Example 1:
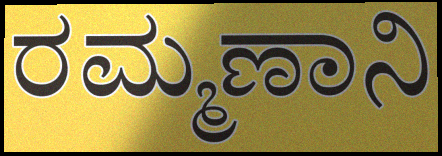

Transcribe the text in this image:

ರಮ್ಮಣಾನಿ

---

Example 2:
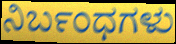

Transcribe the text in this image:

ನಿರ್ಬಂಧಗಳು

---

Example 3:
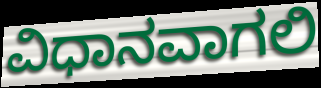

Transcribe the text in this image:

ವಿಧಾನವಾಗಲಿ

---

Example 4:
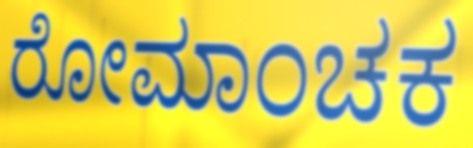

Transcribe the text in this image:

ರೋಮಾಂಚಕ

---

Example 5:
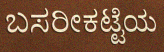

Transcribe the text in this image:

ಬಸರೀಕಟ್ಟೆಯ